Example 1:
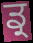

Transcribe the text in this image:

ਡ੍ਰ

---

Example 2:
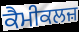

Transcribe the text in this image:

ਕੈਮੀਕਲਜ਼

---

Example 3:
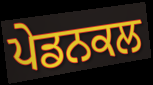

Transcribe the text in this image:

ਪੇਡਨਕਲ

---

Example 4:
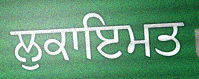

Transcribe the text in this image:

ਲੁਕਾਇਮਤ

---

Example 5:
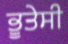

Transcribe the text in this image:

ਭੂਤੇਸੀ